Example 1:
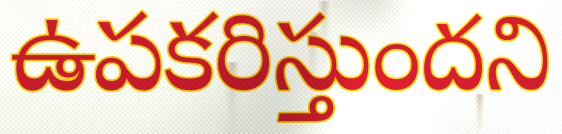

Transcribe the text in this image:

ఉపకరిస్తుందని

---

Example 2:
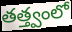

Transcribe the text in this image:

తత్త్వంలో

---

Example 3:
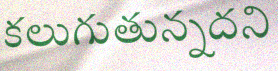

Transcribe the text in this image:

కలుగుతున్నదని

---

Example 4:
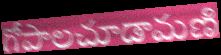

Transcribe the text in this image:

గోపాలచూడామణి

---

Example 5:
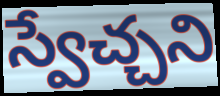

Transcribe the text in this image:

స్వేచ్చని